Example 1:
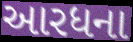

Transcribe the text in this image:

આરધના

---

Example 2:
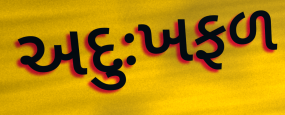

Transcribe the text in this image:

અદુઃખફળ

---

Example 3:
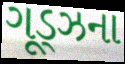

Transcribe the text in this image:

ગૂડ્ઝના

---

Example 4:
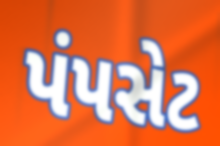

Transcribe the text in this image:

પંપસેટ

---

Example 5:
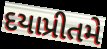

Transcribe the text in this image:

દયાપ્રીતમે